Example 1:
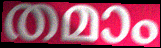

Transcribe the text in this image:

തമാം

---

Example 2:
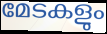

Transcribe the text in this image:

മേടകളും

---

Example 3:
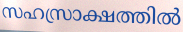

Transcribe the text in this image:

സഹസ്രാക്ഷത്തിൽ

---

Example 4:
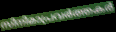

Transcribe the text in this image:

സിനിമാപ്രവർത്തകർ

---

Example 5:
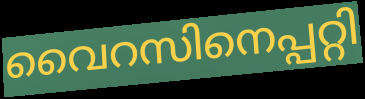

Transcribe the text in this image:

വൈറസിനെപ്പറ്റി